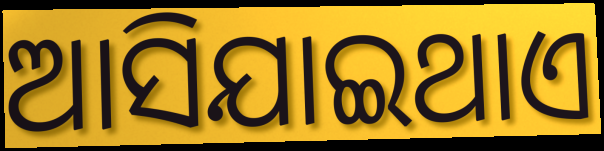
ଆସିଯାଇଥାଏ